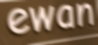
ewan